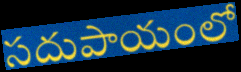
సదుపాయంలో